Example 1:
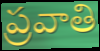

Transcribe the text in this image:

ప్రవాతి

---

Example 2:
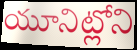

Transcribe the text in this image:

యూనిట్లోని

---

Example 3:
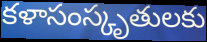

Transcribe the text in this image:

కళాసంస్కృతులకు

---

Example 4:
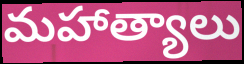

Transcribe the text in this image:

మహాత్యాలు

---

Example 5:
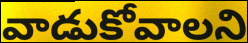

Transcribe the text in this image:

వాడుకోవాలని